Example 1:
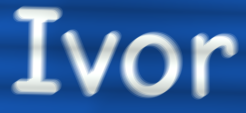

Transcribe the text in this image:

Ivor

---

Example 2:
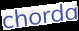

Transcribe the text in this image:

chorda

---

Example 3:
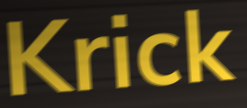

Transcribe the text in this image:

Krick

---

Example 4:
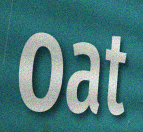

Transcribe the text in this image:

oat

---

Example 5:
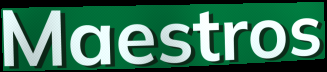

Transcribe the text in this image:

Maestros